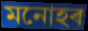
মনোহৰ